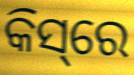
କିସ୍‌ରେ